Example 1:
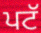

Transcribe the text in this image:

ਪਟੱ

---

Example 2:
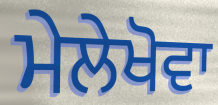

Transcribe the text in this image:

ਮੇਲੇਖੋਵਾ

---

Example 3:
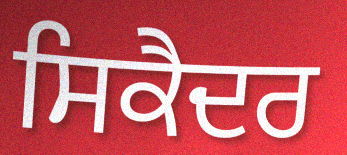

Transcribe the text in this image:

ਸਿਕੈਦਰ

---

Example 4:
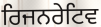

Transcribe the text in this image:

ਰਿਜਨਰੇਟਿਵ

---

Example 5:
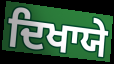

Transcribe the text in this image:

ਦਿਖਾਯੇ